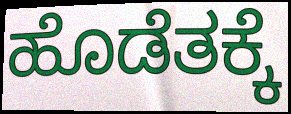
ಹೊಡೆತಕ್ಕೆ